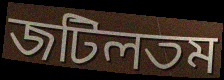
জটিলতম